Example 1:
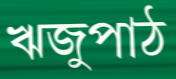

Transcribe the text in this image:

ঋজুপাঠ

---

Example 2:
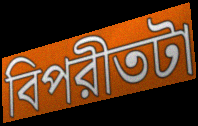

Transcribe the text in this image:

বিপরীতটা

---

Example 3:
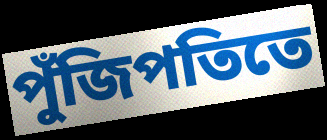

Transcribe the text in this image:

পুঁজিপতিতে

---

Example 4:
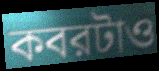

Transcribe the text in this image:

কবরটাও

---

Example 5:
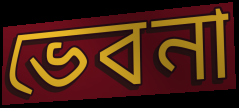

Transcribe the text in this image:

ভেবনা